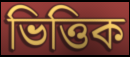
ভিত্তিক